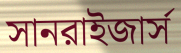
সানরাইজার্স